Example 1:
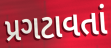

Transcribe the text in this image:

પ્રગટાવતાં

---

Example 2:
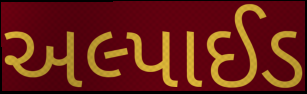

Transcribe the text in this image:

અલ્પાઈડ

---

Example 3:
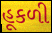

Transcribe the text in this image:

હૂકળી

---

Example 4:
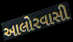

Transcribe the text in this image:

આલોરવાસી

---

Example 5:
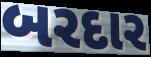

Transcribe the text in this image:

બરદાર